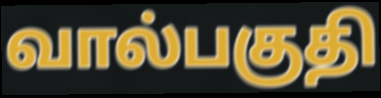
வால்பகுதி